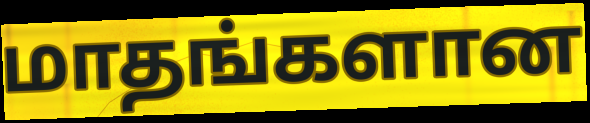
மாதங்களான